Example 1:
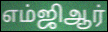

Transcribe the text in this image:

எம்ஜிஆர்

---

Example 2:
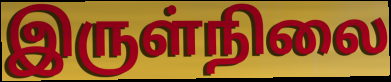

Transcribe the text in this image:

இருள்நிலை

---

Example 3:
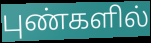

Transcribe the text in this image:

புண்களில்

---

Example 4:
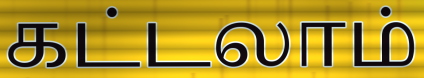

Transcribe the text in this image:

கட்டலாம்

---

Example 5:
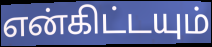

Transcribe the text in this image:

என்கிட்டயும்